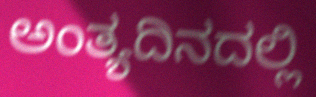
ಅಂತ್ಯದಿನದಲ್ಲಿ